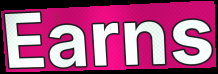
Earns